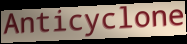
Anticyclone